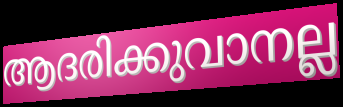
ആദരിക്കുവാനല്ല